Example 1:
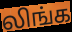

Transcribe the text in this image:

லிங்க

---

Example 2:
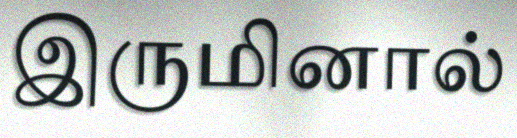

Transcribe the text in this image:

இருமினால்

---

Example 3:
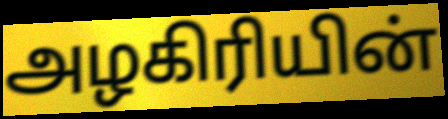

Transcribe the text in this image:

அழகிரியின்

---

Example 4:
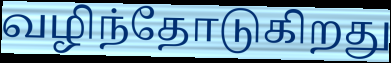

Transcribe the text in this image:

வழிந்தோடுகிறது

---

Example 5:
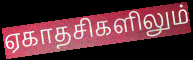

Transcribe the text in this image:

ஏகாதசிகளிலும்